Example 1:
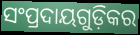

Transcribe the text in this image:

ସଂପ୍ରଦାୟଗୁଡ଼ିକର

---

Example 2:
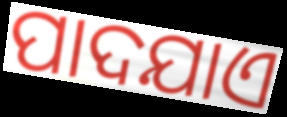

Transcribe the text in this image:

ପାଦଯାଏ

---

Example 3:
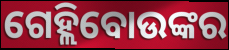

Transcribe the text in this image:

ଗେହ୍ଲିବୋଉଙ୍କର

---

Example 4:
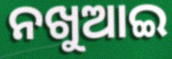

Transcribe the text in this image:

ନଖୁଆଇ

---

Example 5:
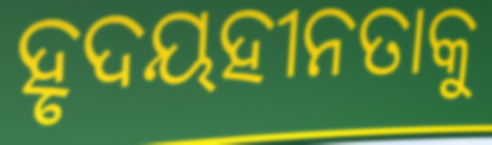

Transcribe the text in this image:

ହୃଦୟହୀନତାକୁ